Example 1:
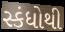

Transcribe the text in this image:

સ્કંધોથી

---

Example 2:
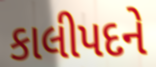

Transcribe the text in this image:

કાલીપદને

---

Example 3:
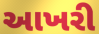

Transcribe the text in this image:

આખરી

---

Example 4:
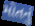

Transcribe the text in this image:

મોતનું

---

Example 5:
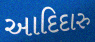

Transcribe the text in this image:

આદિદારુ